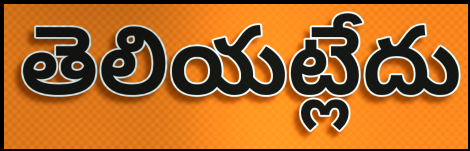
తెలియట్లేదు